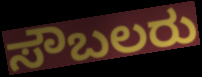
ಸೌಬಲರು